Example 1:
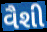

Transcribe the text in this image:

વૈશી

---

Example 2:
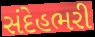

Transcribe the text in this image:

સંદેહભરી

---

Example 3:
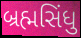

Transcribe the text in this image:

બ્રહ્મસિંધુ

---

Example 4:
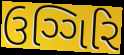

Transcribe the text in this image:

ઉગ્ગિરિ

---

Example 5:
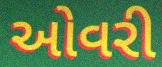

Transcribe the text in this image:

ઓવરી